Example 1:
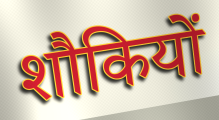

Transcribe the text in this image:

शौकियों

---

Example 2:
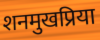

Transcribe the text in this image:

शनमुखप्रिया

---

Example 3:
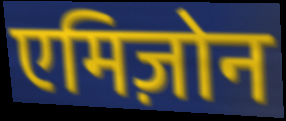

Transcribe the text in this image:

एमिज़ोन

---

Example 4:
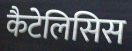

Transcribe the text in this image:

कैटेलिसिस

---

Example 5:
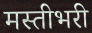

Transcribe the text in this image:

मस्तीभरी